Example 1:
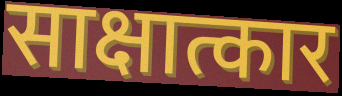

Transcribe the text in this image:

साक्षात्कार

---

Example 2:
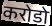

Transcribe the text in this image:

करोडो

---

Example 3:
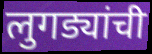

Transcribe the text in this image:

लुगड्यांची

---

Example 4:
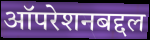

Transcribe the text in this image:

ऑपरेशनबद्दल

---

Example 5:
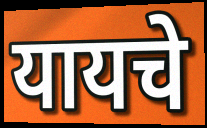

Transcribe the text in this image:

यायचे